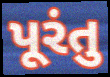
પૂરંતુ